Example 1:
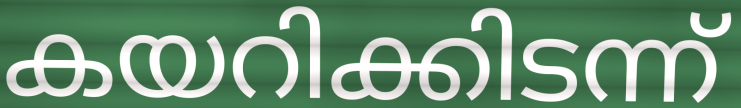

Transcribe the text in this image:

കയറിക്കിടന്ന്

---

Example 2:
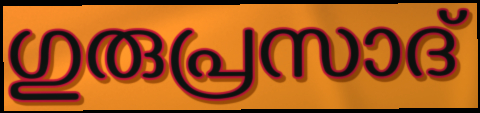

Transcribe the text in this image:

ഗുരുപ്രസാദ്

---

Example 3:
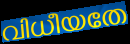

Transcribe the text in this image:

വിധീയതേ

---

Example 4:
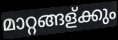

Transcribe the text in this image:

മാറ്റങ്ങള്ക്കും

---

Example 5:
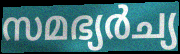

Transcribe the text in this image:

സമഭ്യർച്യ